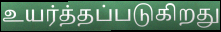
உயர்த்தப்படுகிறது